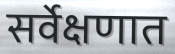
सर्वेक्षणात